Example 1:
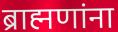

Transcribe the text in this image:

ब्राह्मणांना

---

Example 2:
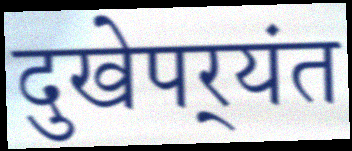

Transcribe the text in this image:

दुखेपर्यंत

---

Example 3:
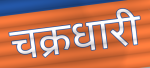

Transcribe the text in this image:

चक्रधारी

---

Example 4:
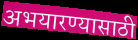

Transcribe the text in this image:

अभयारण्यासाठी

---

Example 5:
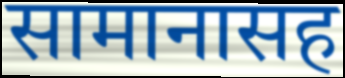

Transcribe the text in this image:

सामानासह